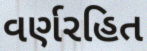
વર્ણરહિત